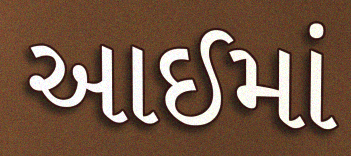
આઈમાં